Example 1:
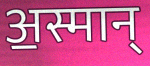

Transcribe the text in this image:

अ॒स्मान्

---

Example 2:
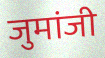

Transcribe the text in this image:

जुमांजी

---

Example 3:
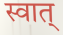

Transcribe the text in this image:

स्वात्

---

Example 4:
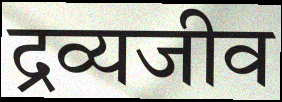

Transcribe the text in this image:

द्रव्यजीव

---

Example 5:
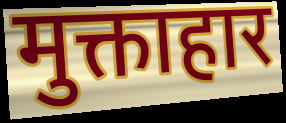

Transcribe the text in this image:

मुक्ताहार